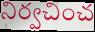
నిర్వచించ